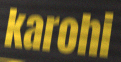
karohi